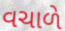
વચાળે